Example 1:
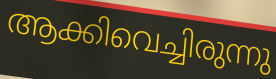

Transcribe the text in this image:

ആക്കിവെച്ചിരുന്നു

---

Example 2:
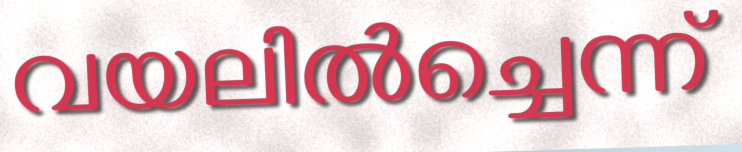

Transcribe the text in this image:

വയലിൽച്ചെന്ന്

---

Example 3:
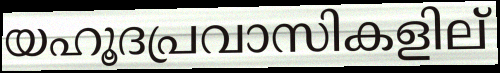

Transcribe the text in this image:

യഹൂദപ്രവാസികളില്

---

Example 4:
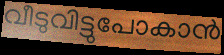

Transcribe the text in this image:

വീടുവിട്ടുപോകാൻ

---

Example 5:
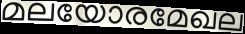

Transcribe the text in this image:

മലയോരമേഖല